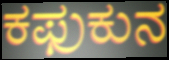
ಕಫುಕುನ